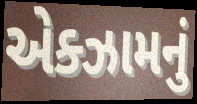
એક્ઝામનું